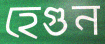
হেগুন